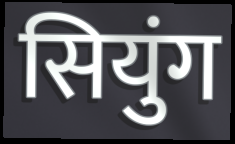
सियुंग